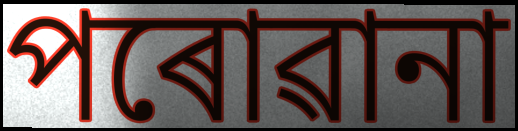
পৰোৱানা